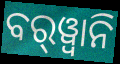
ବର୍‍ୱ୍ୱାନି